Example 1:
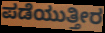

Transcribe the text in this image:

ಪಡೆಯುತ್ತೀರ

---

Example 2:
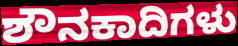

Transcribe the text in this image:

ಶೌನಕಾದಿಗಳು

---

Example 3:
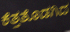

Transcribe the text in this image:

ಕೆತ್ತತೊಡಗಿದ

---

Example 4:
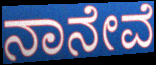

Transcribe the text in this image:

ನಾನೇವೆ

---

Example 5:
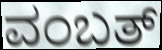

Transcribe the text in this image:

ವಂಬತ್